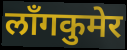
लाँगकुमेर